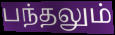
பந்தலும்